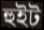
হুইট